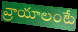
వ్రాయాలంటే